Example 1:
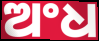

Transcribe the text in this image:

ଅଂଧ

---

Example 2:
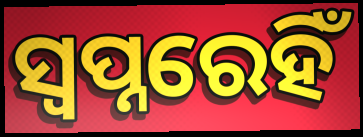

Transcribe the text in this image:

ସ୍ୱପ୍ନରେହିଁ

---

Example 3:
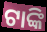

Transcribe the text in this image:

ଟାଙ୍କି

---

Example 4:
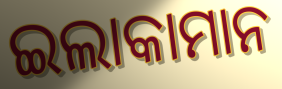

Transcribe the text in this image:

ଇଲାକାମାନ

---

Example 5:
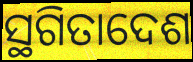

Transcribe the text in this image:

ସ୍ଥଗିତାଦେଶ